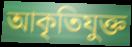
আকৃতিযুক্ত